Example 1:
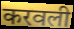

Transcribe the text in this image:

करवली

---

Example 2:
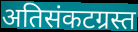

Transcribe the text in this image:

अतिसंकटग्रस्त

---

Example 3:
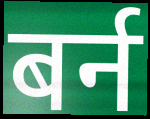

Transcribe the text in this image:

बर्न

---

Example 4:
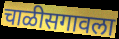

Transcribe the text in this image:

चाळीसगावला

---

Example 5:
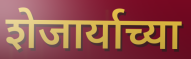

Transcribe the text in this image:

शेजार्याच्या